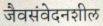
जैवसंवेदनशील